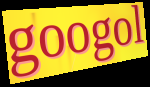
googol